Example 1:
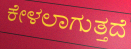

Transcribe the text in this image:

ಕೇಳಲಾಗುತ್ತದೆ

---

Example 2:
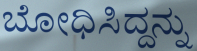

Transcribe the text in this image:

ಬೋಧಿಸಿದ್ದನ್ನು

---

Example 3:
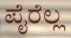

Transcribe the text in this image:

ಪೈರೆಲ್ಲ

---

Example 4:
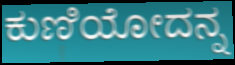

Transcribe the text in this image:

ಕುಣಿಯೋದನ್ನ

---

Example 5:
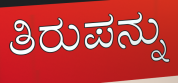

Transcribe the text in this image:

ತಿರುಪನ್ನು